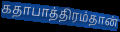
கதாபாத்திரம்தான்